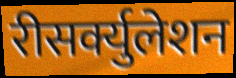
रीसर्क्युलेशन